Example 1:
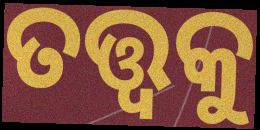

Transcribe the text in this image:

ତତ୍ତ୍ଵକୁ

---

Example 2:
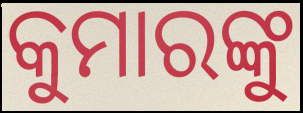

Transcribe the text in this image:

କୁମାରଙ୍କୁ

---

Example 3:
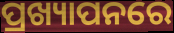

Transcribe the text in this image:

ପ୍ରଖ୍ୟାପନରେ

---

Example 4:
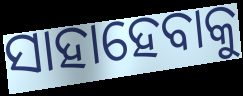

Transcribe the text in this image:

ସାହାହେବାକୁ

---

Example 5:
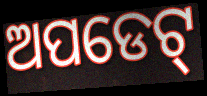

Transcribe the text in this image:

ଅପଡେଟ୍